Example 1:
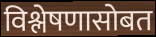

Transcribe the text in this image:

विश्लेषणासोबत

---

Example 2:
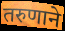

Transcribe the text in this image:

तरुणाने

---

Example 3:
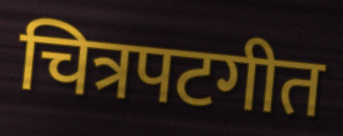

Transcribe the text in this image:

चित्रपटगीत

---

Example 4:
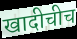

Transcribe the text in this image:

खादीचीच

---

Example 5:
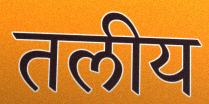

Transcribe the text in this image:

तलीय